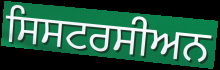
ਸਿਸਟਰਸੀਅਨ